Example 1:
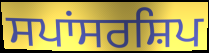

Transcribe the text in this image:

ਸਪਾਂਸਰਸ਼ਿਪ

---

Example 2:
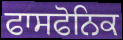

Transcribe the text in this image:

ਫਾਸਫੋਨਿਕ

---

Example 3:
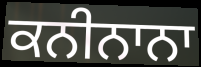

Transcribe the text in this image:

ਕਨੀਨਾਨਾ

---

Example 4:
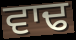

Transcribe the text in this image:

ਵਾਢ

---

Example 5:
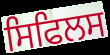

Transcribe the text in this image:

ਸਿਫਿਲਸ